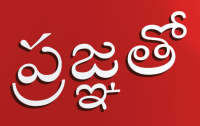
ప్రజ్ఞతో